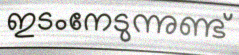
ഇടംനേടുന്നുണ്ട്